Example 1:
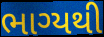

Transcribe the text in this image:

ભાગ્યથી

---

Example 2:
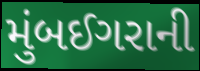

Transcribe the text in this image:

મુંબઈગરાની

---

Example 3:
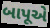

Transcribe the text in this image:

બાપૂએ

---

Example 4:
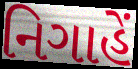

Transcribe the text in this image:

નિગાહેં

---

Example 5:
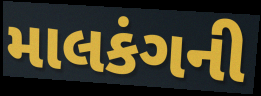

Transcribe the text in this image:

માલકંગની